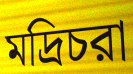
মদ্রিচরা